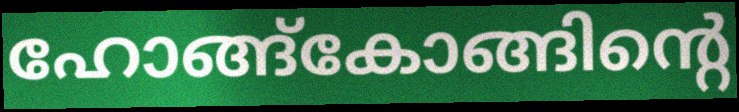
ഹോങ്ങ്കോങ്ങിന്റെ